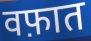
वफ़ात